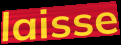
laisse